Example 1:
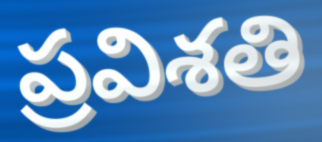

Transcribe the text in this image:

ప్రవిశతి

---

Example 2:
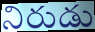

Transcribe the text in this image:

నిరుడు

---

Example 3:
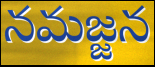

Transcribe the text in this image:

నమజ్జన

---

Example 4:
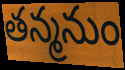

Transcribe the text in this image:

తన్మనుం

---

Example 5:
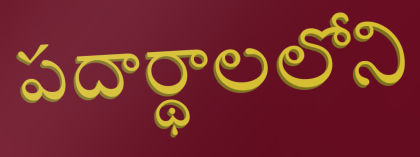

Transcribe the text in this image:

పదార్థాలలోని